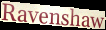
Ravenshaw